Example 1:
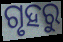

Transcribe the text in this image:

ଗୃହରୁ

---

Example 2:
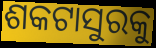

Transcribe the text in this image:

ଶକଟାସୁରକୁ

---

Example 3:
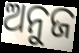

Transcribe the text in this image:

ଅନୁଜ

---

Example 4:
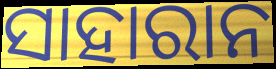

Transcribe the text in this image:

ସାହାରାନ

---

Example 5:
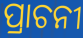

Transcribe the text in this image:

ପ୍ରାଚନୀ